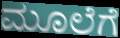
ಮೂಲೆಗೆ